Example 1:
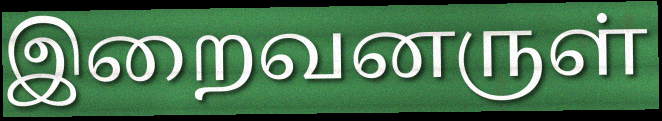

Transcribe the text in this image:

இறைவனருள்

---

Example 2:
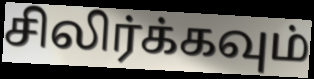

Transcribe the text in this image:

சிலிர்க்கவும்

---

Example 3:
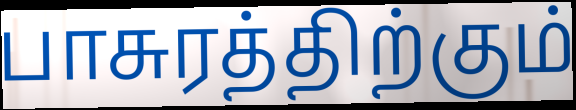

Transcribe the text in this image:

பாசுரத்திற்கும்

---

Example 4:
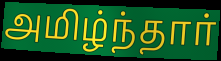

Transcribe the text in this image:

அமிழ்ந்தார்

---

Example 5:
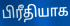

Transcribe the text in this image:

பிரீதியாக